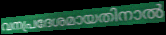
വനപ്രദേശമായതിനാൽ